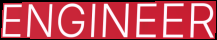
ENGINEER